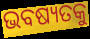
ଭବଷ୍ୟତକୁ